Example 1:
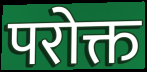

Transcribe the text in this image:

परोक्त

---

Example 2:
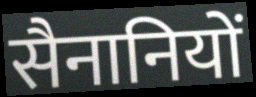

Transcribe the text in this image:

सैनानियों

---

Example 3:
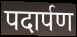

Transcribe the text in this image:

पदार्पण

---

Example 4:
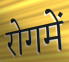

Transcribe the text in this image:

रोगमें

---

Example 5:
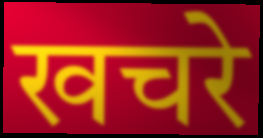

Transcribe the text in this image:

खचरे